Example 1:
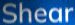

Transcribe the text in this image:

Shear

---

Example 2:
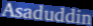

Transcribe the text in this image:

Asaduddin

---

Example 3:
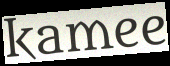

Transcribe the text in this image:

kamee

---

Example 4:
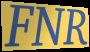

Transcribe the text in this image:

FNR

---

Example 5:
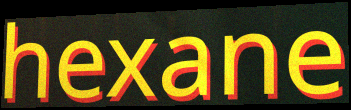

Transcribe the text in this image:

hexane